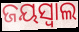
ଜୟସ୍ୱାଲ